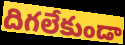
దిగలేకుండా